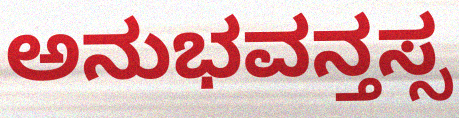
ಅನುಭವನ್ತಸ್ಸ